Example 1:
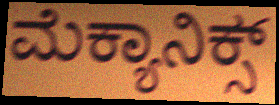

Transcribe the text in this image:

ಮೆಕ್ಯಾನಿಕ್ಸ್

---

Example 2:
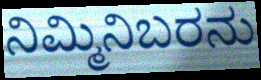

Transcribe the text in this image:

ನಿಮ್ಮಿನಿಬರನು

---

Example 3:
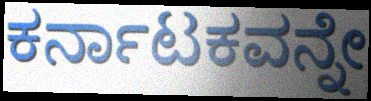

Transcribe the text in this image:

ಕರ್ನಾಟಕವನ್ನೇ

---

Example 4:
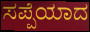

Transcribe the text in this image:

ಸಪ್ಪೆಯಾದ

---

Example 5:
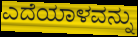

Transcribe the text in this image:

ಎದೆಯಾಳವನ್ನು